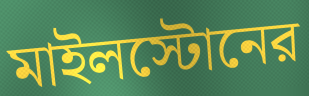
মাইলস্টোনের